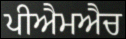
ਪੀਐਮਐਚ